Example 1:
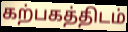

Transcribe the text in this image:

கற்பகத்திடம்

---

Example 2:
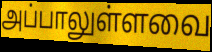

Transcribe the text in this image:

அப்பாலுள்ளவை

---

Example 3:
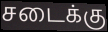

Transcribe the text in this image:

சடைக்கு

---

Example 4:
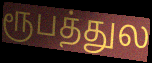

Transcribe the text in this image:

ரூபத்துல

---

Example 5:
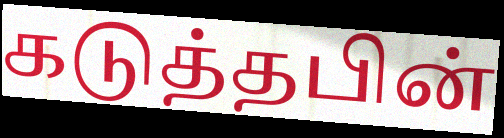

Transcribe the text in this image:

கடுத்தபின்